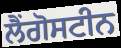
ਲੈਂਗੋਸਟੀਨ